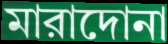
মারাদোনা